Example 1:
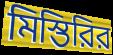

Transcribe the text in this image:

মিস্তিরির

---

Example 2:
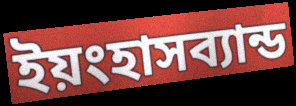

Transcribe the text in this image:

ইয়ংহাসব্যান্ড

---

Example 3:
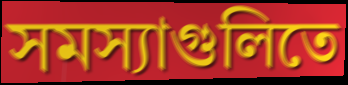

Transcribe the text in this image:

সমস্যাগুলিতে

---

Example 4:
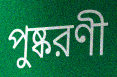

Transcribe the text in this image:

পুষ্করণী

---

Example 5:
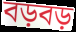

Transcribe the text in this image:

বড়বড়